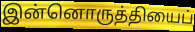
இன்னொருத்தியைப்